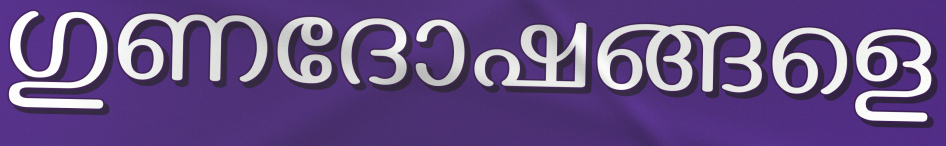
ഗുണദോഷങ്ങളെ